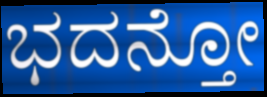
ಭದನ್ತೋ